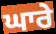
ਘਾਰੇ